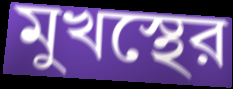
মুখস্থের